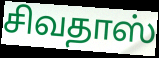
சிவதாஸ்